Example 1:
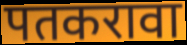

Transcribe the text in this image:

पतकरावा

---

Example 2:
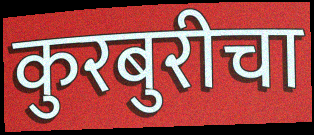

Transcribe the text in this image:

कुरबुरीचा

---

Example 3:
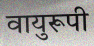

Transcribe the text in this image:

वायुरूपी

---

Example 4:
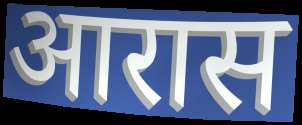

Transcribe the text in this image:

आरास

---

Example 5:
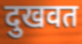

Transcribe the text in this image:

दुखवत